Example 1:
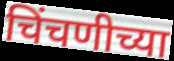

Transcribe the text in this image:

चिंचणीच्या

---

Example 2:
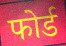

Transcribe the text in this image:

फोर्ड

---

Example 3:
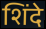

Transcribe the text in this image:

शिंदे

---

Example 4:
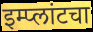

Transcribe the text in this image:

इम्प्लांटचा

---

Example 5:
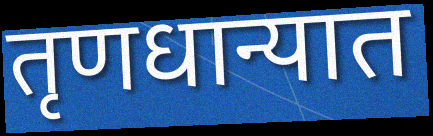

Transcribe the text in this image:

तृणधान्यात